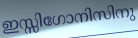
ഇസ്സിഗോനിസിനു